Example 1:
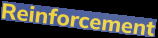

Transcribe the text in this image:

Reinforcement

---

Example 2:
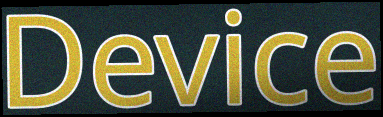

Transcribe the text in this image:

Device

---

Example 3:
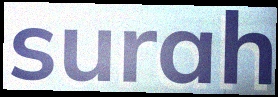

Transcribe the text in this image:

surah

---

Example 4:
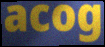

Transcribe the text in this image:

acog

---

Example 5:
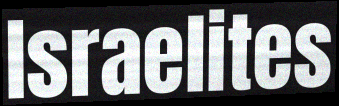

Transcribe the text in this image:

Israelites